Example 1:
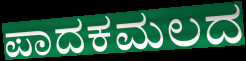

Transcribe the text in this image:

ಪಾದಕಮಲದ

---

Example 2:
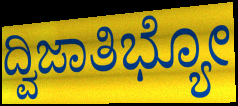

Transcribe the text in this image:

ದ್ವಿಜಾತಿಭ್ಯೋ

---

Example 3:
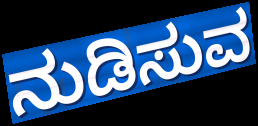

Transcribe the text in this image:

ನುಡಿಸುವ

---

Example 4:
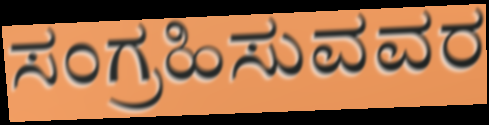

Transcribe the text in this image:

ಸಂಗ್ರಹಿಸುವವರ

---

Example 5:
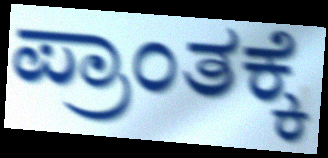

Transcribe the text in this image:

ಪ್ರಾಂತಕ್ಕೆ